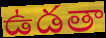
ఉడతా